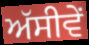
ਅੱਸੀਵੇਂ